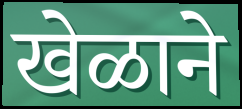
खेळाने